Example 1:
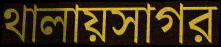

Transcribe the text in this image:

থালায়সাগর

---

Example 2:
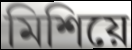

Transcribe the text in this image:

মিশিয়ে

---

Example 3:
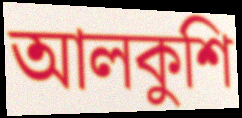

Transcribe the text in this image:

আলকুশি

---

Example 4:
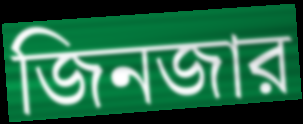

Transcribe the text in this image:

জিনজার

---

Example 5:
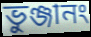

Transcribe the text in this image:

ভুঞ্জানং